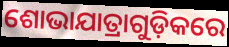
ଶୋଭାଯାତ୍ରାଗୁଡ଼ିକରେ